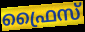
ഫ്രൈസ്